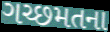
ગચ્છમતના